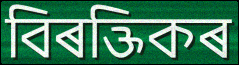
বিৰক্তিকৰ